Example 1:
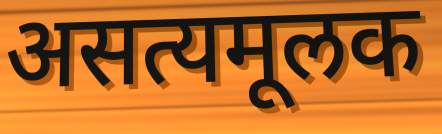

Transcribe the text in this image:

असत्यमूलक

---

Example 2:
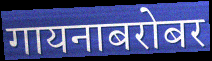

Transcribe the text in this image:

गायनाबरोबर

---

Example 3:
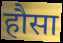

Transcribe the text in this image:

हौसा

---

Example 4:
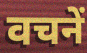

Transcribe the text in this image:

वचनें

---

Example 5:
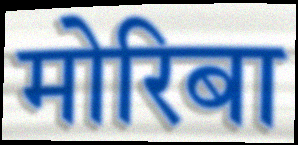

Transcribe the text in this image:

मोरिबा